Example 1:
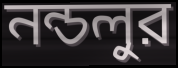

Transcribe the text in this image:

নন্ডলুর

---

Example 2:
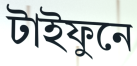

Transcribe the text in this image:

টাইফুনে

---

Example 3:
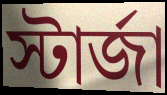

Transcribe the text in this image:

স্টার্জা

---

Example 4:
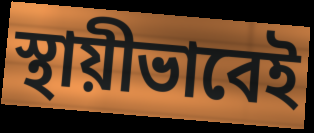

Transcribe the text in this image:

স্থায়ীভাবেই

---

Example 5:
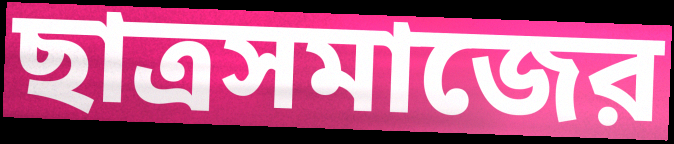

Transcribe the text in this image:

ছাত্রসমাজের